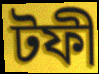
টফী